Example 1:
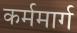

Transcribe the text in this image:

कर्ममार्ग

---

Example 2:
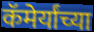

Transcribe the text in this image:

कॅमेर्यांच्या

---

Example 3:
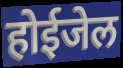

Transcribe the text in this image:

होईजेल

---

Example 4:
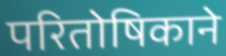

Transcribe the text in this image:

परितोषिकाने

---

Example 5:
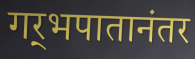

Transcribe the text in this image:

गर्भपातानंतर